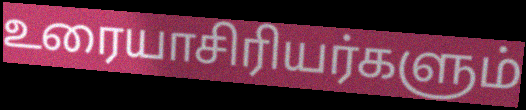
உரையாசிரியர்களும்